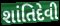
શાંતિદેવી